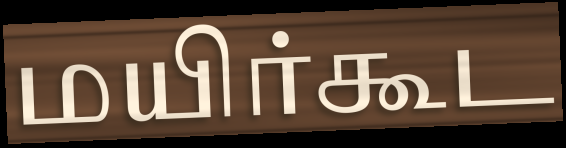
மயிர்கூட